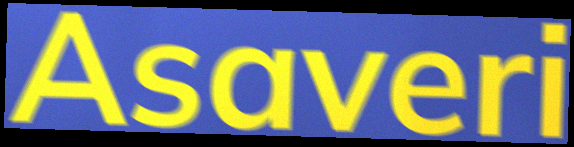
Asaveri